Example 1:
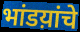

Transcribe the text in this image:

भांडय़ांचे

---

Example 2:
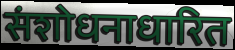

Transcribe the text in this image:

संशोधनाधारित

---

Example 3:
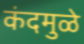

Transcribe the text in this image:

कंदमुळे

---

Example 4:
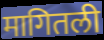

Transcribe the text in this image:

मागितली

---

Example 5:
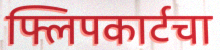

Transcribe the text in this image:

फ्लिपकार्टचा